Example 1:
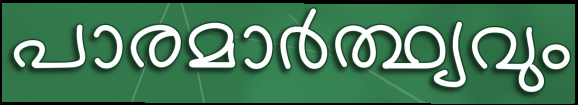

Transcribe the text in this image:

പാരമാർത്ഥ്യവും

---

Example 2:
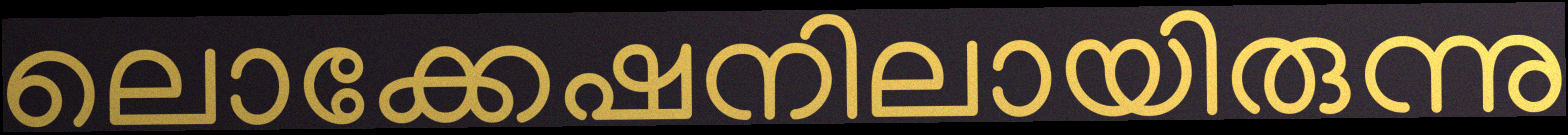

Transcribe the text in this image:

ലൊക്കേഷനിലായിരുന്നു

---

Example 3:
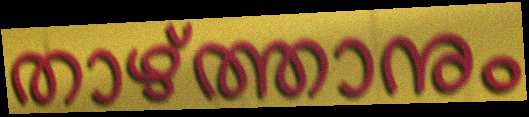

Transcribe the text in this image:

താഴ്ത്താനും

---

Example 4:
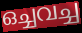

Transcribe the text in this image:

ഒച്ചവച്ച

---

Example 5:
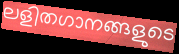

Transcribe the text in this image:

ലളിതഗാനങ്ങളുടെ